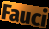
Fauci